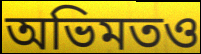
অভিমতও